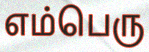
எம்பெரு